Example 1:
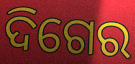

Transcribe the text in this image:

ଦିଗେର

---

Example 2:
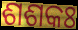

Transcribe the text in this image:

ଶଶକଃ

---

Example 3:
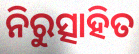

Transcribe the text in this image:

ନିରୁତ୍ସାହିତ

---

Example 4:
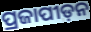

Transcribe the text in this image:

ପ୍ରଜାପୀଡ଼ନ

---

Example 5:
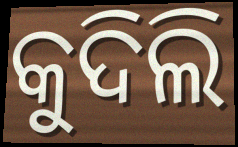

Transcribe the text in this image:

କୁଦିଲି